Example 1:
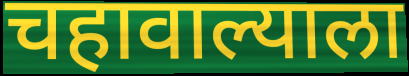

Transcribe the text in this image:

चहावाल्याला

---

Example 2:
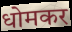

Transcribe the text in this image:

धोमकर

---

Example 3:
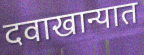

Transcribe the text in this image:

दवाखान्यात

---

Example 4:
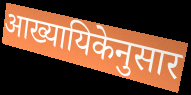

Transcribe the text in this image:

आख्यायिकेनुसार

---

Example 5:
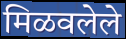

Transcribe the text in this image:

मिळवलेले